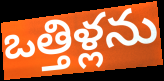
ఒత్తిళ్లను